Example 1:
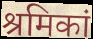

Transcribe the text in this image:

श्रमिकां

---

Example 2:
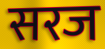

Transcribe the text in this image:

सरज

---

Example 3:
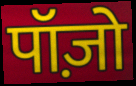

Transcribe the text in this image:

पॉज़ो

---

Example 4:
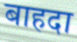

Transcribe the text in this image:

बाहदा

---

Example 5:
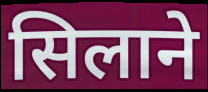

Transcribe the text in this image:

सिलाने